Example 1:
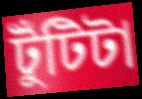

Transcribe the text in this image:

টুঁটিটা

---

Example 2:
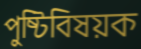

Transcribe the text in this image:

পুষ্টিবিষয়ক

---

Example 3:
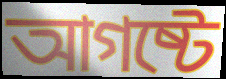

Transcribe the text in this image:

আগষ্টে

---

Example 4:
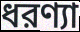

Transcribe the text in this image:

ধরণ্যা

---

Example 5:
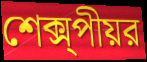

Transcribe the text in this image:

শেক্স্পীয়র